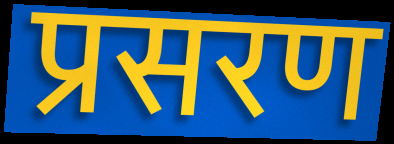
प्रसरण